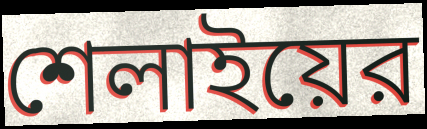
শেলাইয়ের